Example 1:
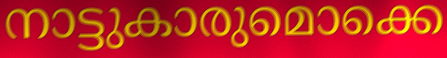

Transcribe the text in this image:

നാട്ടുകാരുമൊക്കെ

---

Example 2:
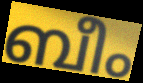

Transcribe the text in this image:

ബീം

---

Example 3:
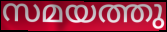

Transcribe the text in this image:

സമയത്തു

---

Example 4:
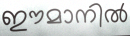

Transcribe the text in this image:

ഈമാനിൽ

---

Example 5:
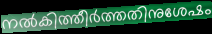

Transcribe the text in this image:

നൽകിത്തീർത്തതിനുശേഷം